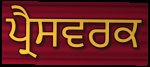
ਪ੍ਰੈਸਵਰਕ